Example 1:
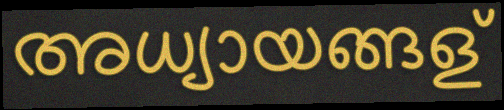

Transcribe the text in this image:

അധ്യായങ്ങള്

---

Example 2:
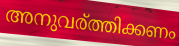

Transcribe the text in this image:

അനുവര്ത്തിക്കണം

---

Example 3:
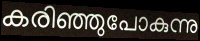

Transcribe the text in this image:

കരിഞ്ഞുപോകുന്നു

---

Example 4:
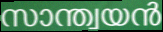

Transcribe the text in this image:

സാന്ത്വയൻ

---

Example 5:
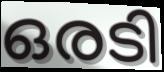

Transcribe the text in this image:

ഒരടി